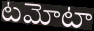
టమోటా